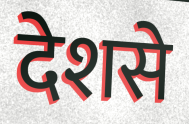
देशसे